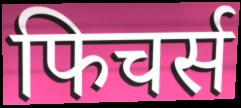
फिचर्स